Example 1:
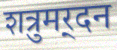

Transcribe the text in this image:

शत्रुमर्दन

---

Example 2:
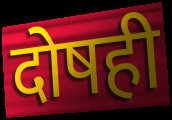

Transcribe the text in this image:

दोषही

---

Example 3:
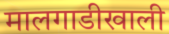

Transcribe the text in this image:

मालगाडीखाली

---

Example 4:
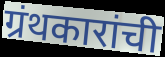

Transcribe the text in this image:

ग्रंथकारांची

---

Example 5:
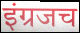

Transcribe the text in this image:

इंग्रजच